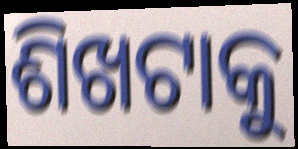
ଶିଖଟାକୁ